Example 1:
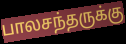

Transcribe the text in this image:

பாலசந்தருக்கு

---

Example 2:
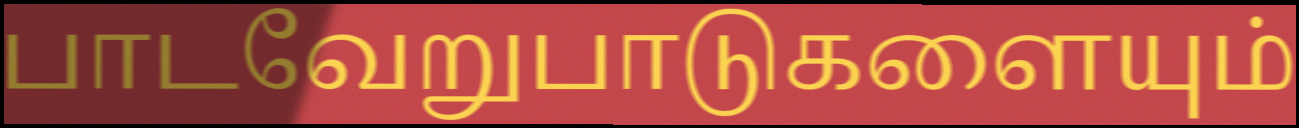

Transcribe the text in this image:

பாடவேறுபாடுகளையும்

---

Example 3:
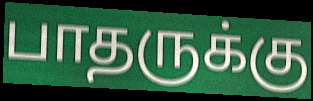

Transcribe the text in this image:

பாதருக்கு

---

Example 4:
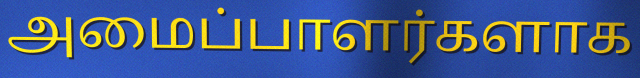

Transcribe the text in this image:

அமைப்பாளர்களாக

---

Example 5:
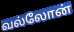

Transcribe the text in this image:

வல்லோன்